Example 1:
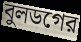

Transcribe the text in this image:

বুলডগের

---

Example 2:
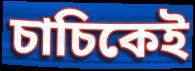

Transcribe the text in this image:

চাচিকেই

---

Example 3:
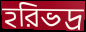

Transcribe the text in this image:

হরিভদ্র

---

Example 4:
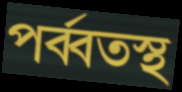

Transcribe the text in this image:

পর্ব্বতস্থ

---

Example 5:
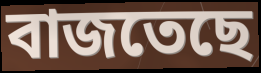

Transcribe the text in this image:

বাজতেছে